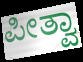
ಪೀತ್ವಾ